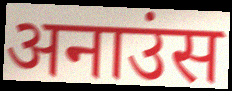
अनाउंस